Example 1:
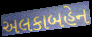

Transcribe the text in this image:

અલકાબહેન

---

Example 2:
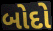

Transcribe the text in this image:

બોદો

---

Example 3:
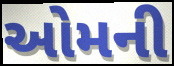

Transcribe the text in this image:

ઓમની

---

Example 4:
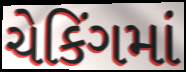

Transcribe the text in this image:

ચેકિંગમાં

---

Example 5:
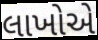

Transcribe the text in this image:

લાખોએ